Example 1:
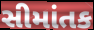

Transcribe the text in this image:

સીમાંતક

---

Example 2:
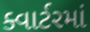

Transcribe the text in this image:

ક્વાર્ટરમાં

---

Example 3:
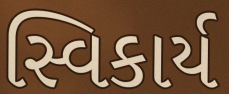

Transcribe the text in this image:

સ્વિકાર્ય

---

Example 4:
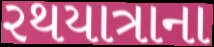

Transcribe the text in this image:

રથયાત્રાના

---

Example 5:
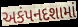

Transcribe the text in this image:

અકંપનદશામાં